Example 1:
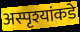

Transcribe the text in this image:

अस्पृश्यांकडे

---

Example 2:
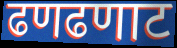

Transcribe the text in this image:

ढणढणाट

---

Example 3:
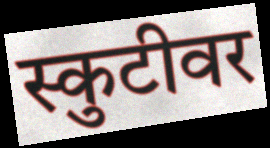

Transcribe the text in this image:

स्कुटीवर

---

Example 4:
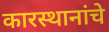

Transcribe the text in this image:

कारस्थानांचे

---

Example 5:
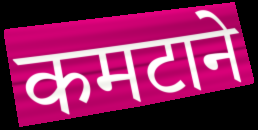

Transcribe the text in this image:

कमटाने